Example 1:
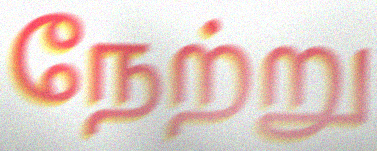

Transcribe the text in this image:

நேற்று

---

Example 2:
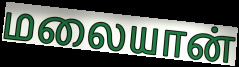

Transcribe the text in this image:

மலையான்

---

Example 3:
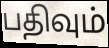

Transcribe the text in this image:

பதிவும்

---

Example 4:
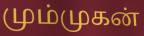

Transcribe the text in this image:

மும்முகன்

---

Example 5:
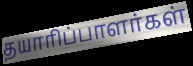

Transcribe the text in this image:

தயாரிப்பாளர்கள்